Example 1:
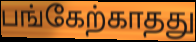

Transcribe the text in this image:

பங்கேற்காதது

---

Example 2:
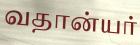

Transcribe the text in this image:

வதான்யர்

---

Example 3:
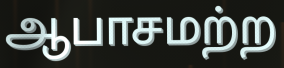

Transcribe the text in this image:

ஆபாசமற்ற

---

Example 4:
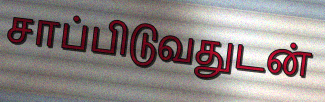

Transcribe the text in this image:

சாப்பிடுவதுடன்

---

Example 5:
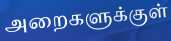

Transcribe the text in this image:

அறைகளுக்குள்